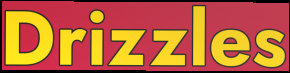
Drizzles